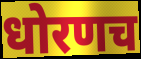
धोरणच